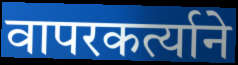
वापरकर्त्याने